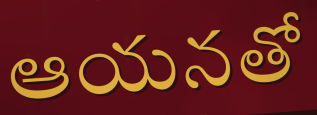
ఆయనతో